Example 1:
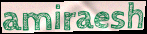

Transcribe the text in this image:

amiraesh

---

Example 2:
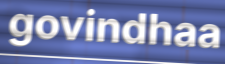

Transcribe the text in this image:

govindhaa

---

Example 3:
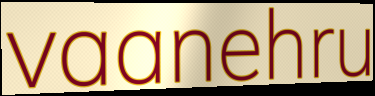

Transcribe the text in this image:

vaanehru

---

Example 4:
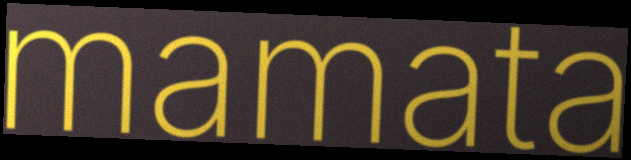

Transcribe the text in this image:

mamata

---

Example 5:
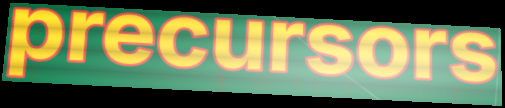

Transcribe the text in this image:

precursors